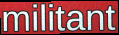
militant